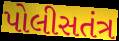
પોલીસતંત્ર